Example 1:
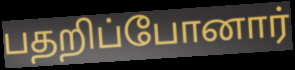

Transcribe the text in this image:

பதறிப்போனார்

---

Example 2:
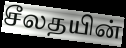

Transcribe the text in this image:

சீலதயின்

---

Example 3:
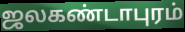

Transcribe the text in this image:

ஜலகண்டாபுரம்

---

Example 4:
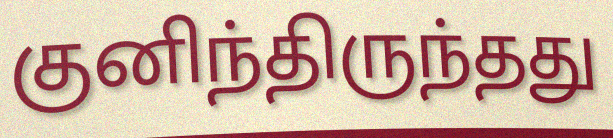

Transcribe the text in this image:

குனிந்திருந்தது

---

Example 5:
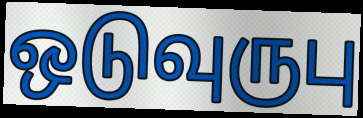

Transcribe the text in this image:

ஒடுவுருபு